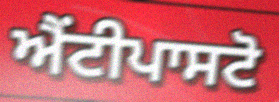
ਐਂਟੀਪਾਸਟੋ